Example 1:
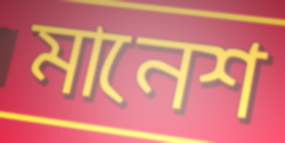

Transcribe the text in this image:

মানেশ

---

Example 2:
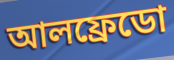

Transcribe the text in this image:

আলফ্রেডো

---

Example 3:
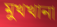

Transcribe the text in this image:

মুখখানা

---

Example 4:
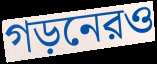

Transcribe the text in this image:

গড়নেরও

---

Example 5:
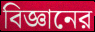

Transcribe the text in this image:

বিজ্ঞানের